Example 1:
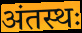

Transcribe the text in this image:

अंतस्थः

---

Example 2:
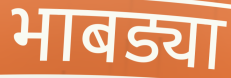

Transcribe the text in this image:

भाबड्या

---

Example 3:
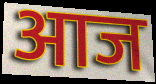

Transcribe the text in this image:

आज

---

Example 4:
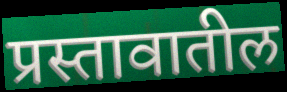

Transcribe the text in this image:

प्रस्तावातील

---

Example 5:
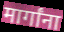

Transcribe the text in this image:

मार्गांना